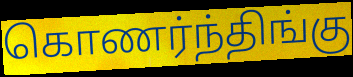
கொணர்ந்திங்கு